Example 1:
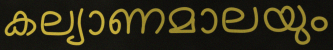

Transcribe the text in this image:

കല്യാണമാലയും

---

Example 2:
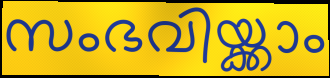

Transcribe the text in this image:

സംഭവിയ്ക്കാം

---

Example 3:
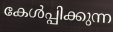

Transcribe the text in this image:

കേൾപ്പിക്കുന്ന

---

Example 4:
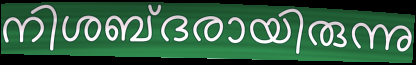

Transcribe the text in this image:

നിശബ്ദരായിരുന്നു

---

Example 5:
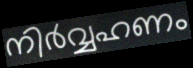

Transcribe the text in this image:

നിർവ്വഹണം